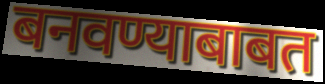
बनवण्याबाबत